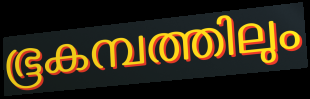
ഭൂകമ്പത്തിലും